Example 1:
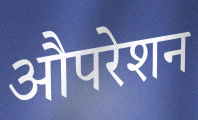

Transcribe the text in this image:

औपरेशन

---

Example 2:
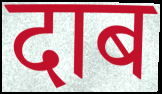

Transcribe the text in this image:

दाब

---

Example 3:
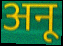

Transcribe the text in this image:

अनू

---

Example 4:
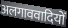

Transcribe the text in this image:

अलगाववादियों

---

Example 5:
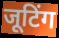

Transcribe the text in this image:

जूटिंग